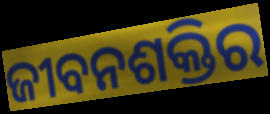
ଜୀବନଶକ୍ତିର